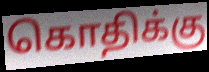
கொதிக்கு